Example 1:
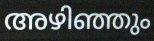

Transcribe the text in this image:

അഴിഞ്ഞും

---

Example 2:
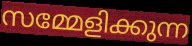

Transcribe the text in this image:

സമ്മേളിക്കുന്ന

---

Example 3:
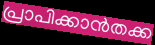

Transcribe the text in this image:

പ്രാപിക്കാൻതക്ക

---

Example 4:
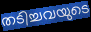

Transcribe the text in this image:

തടിച്ചവയുടെ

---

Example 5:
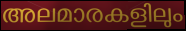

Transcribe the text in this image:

അലമാരകളിലും